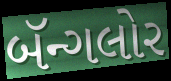
બૅન્ગલોર